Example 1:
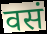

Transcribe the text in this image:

वसं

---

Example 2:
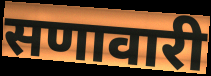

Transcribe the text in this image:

सणावारी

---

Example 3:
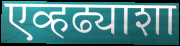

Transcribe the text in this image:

एव्हढ्याशा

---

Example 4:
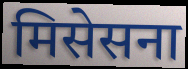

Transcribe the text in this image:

मिसेसना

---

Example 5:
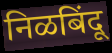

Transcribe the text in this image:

निळबिंदू